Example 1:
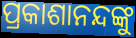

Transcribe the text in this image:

ପ୍ରକାଶାନନ୍ଦଙ୍କୁ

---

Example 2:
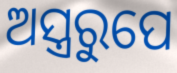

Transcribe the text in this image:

ଅସ୍ତ୍ରରୁପେ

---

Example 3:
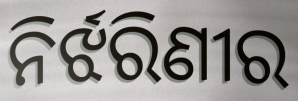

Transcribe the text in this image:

ନିର୍ଝରିଣୀର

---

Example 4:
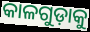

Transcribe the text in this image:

କାଳଗୁଡ଼ାକୁ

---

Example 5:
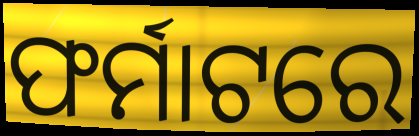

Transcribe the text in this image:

ଫର୍ମାଟରେ